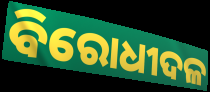
ବିରୋଧୀଦଳ